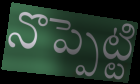
నొప్పెట్టి